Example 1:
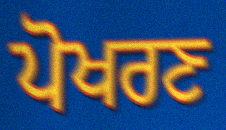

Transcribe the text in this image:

ਪੋਖਰਣ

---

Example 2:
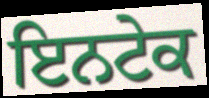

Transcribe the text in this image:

ਇਨਟੇਕ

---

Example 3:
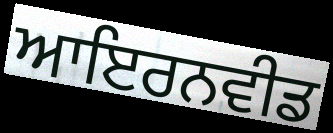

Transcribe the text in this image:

ਆਇਰਨਵੀਡ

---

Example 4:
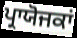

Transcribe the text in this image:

ਪ੍ਰਾਯੋਜਕਾਂ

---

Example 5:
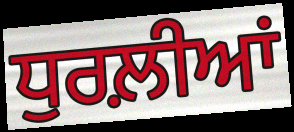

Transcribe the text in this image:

ਧੁਰਲ਼ੀਆਂ